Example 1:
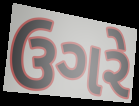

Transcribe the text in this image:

ઉગરે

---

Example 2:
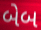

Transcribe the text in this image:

બેબ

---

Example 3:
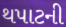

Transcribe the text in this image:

થપાટની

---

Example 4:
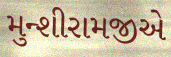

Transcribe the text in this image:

મુન્શીરામજીએ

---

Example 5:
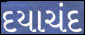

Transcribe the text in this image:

દયાચંદ